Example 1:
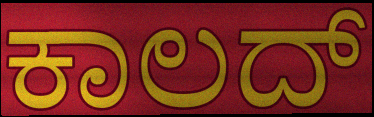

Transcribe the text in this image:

ಕಾಲದ್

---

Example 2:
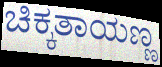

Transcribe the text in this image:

ಚಿಕ್ಕತಾಯಣ್ಣ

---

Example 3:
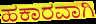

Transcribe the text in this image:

ಹಕಾರವಾಗಿ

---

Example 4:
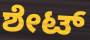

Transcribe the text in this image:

ಶೇಟ್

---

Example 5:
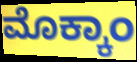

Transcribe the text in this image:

ಮೊಕ್ಕಾಂ